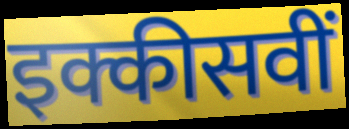
इक्‍कीसवीं